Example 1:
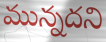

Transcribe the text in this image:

మున్నదని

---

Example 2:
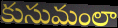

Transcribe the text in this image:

కుసుమంలా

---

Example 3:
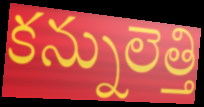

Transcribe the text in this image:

కన్నులెత్తి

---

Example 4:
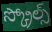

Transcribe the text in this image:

స్క్రోల్స్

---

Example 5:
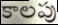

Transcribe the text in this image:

కాలపు